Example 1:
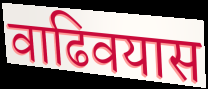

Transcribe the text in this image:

वाढिवयास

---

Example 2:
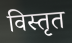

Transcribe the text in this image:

विस्तृत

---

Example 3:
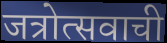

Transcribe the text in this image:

जत्रोत्सवाची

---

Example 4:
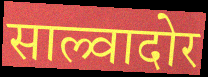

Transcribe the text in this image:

साल्वादोर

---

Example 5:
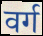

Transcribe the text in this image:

वर्ग